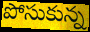
పోసుకున్న